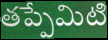
తప్పేమిటి